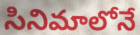
సినిమాలోనే